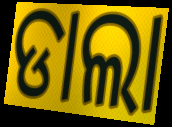
ଡାଲା